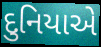
દુનિયાએ